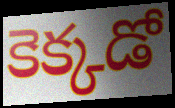
కెక్కడో